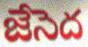
జేసెద